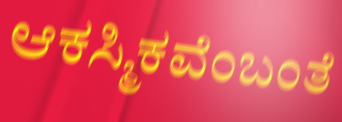
ಆಕಸ್ಮಿಕವೆಂಬಂತೆ